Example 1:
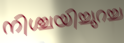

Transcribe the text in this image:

നിശ്ചയിച്ചുറച്ച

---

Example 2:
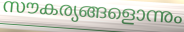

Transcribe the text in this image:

സൗകര്യങ്ങളൊന്നും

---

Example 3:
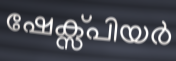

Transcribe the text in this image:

ഷേക്സ്പിയർ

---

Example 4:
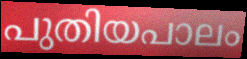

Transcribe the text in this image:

പുതിയപാലം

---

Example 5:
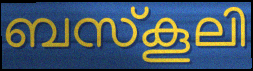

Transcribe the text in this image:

ബസ്കൂലി